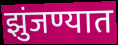
झुंजण्यात